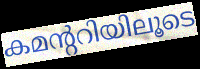
കമന്ററിയിലൂടെ